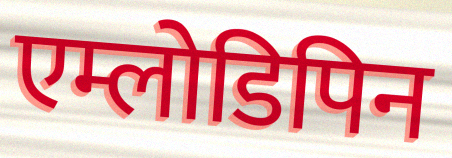
एम्लोडिपिन